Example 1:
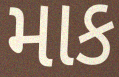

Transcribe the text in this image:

માક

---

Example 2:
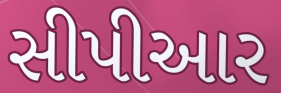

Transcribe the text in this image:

સીપીઆર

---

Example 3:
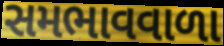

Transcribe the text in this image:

સમભાવવાળા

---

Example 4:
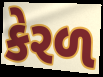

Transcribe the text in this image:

કેરળ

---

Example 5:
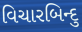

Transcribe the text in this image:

વિચારબિન્દુ